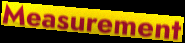
Measurement